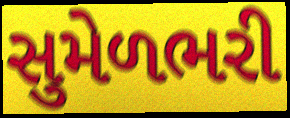
સુમેળભરી